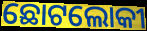
ଛୋଟଲୋକୀ